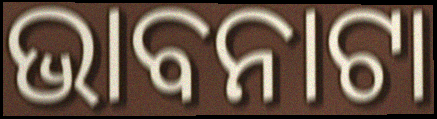
ଭାବନାଟା